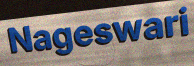
Nageswari